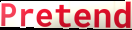
Pretend